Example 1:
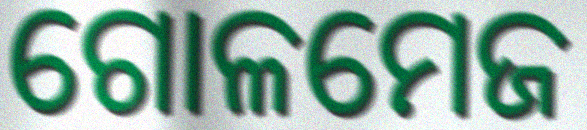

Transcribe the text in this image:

ଗୋଳମେଜ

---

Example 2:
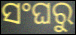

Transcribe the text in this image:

ସଂଘରୁ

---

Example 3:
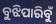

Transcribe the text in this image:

ବୁଝିପାରିବୁଁ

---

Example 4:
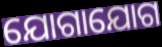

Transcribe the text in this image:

ଯୋଗାଯୋଗ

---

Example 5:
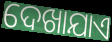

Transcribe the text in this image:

ଦେଖାଯାଏ